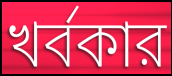
খর্বকার